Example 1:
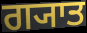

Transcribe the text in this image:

ਗ੍ਯਾਤ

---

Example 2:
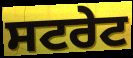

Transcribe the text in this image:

ਸਟਰੇਟ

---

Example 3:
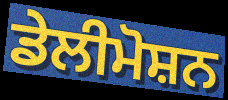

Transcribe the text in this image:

ਡੇਲੀਮੋਸ਼ਨ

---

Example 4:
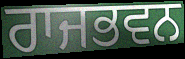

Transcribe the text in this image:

ਰਾਜਭਵਨ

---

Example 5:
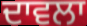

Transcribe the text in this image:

ਦਾਵਲਾ